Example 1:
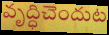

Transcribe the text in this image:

వృద్ధిచెందుట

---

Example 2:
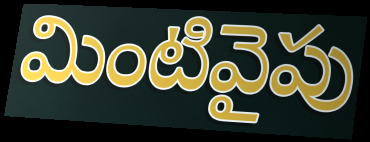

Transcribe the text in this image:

మింటివైపు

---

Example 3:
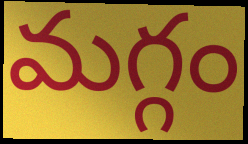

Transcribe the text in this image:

మగ్గం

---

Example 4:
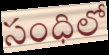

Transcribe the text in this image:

సంధిలో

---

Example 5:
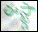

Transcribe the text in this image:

ఈస్ట్గా